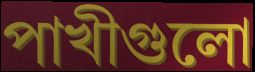
পাখীগুলো